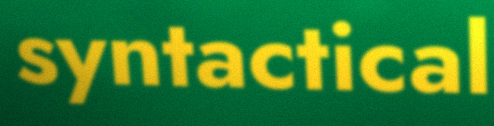
syntactical